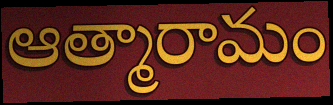
ఆత్మారామం